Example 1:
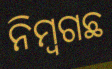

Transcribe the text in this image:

ନିମ୍ୱଗଛ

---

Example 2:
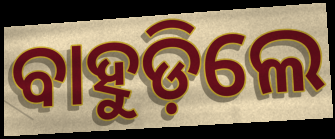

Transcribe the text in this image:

ବାହୁଡ଼ିଲେ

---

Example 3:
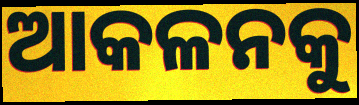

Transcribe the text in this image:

ଆକଳନକୁ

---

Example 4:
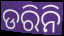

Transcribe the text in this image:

ଡରିନି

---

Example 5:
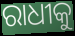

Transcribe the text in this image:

ରାଧୀକୁ